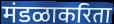
मंडळाकरिता